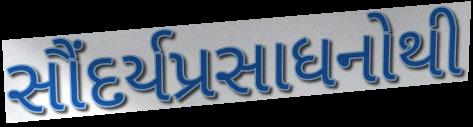
સૌંદર્યપ્રસાધનોથી